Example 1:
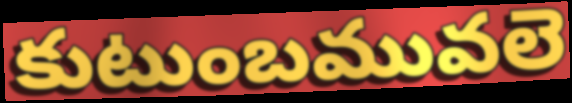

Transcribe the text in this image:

కుటుంబమువలె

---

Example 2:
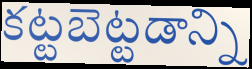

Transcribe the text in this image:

కట్టబెట్టడాన్ని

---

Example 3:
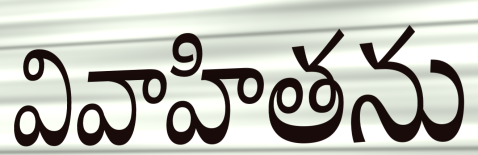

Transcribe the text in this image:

వివాహితను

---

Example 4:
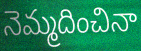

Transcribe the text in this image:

నెమ్మదించినా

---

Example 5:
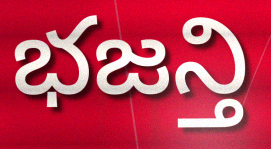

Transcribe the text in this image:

భజన్తి